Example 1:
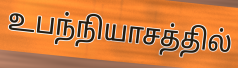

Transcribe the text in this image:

உபந்நியாசத்தில்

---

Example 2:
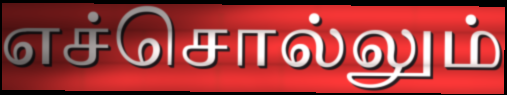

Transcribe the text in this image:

எச்சொல்லும்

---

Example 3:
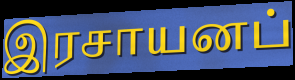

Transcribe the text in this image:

இரசாயனப்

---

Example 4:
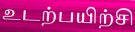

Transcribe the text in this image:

உடற்பயிற்சி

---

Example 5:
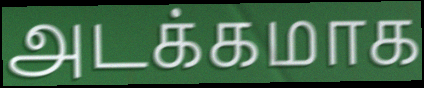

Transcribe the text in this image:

அடக்கமாக